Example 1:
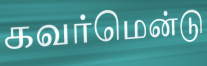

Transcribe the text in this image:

கவர்மென்டு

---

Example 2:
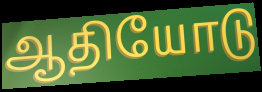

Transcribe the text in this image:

ஆதியோடு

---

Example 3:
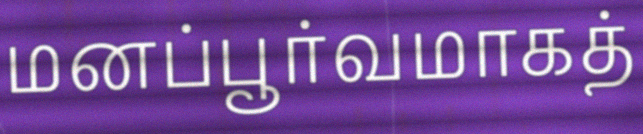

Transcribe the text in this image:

மனப்பூர்வமாகத்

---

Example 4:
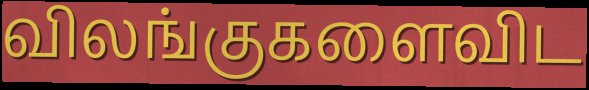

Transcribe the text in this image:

விலங்குகளைவிட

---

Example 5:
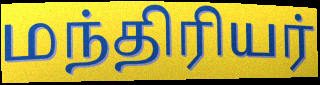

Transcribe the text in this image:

மந்திரியர்